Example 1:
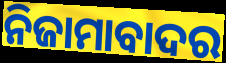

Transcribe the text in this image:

ନିଜାମାବାଦର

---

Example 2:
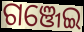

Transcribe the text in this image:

ଗଞ୍ଜେଇ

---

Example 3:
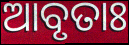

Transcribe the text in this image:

ଆବୃତାଃ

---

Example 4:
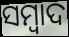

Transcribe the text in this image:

ସମ୍ବାଦ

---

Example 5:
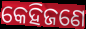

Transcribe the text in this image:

କେହିଜଣେ